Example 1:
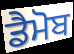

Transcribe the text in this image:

ਡੈਮੋਬ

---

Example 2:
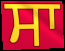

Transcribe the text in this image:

ਸਾ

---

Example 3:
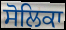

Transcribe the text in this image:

ਸੋਲਿਕਾ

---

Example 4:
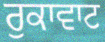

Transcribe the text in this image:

ਰੁਕਾਵਾਟ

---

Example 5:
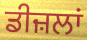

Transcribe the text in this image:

ਡੀਜ਼ਲਾਂ